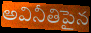
అవినీతిపైన